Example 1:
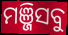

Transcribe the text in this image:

ମଞ୍ଜିସବୁ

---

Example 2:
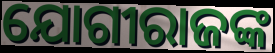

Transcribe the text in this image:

ଯୋଗୀରାଜଙ୍କ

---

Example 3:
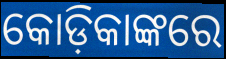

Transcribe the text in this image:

କୋଡ଼ିକାଙ୍କରେ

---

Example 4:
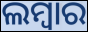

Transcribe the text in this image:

ଲମ୍ୱାର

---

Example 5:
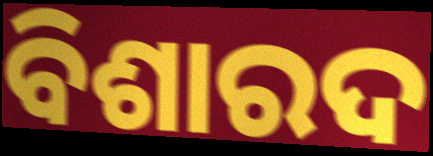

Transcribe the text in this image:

ବିଶାରଦ